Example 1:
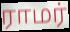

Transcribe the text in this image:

ராமர்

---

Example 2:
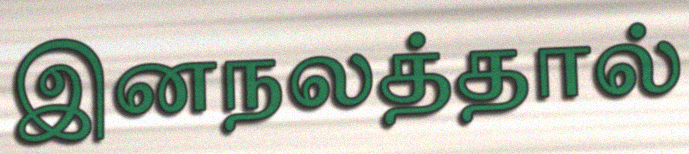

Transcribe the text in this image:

இனநலத்தால்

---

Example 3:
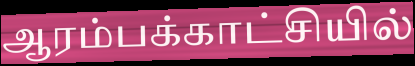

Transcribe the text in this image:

ஆரம்பக்காட்சியில்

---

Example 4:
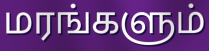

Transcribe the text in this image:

மரங்களும்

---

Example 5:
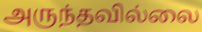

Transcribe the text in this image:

அருந்தவில்லை